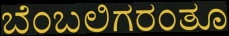
ಬೆಂಬಲಿಗರಂತೂ